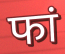
फां